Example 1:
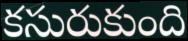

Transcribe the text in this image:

కసురుకుంది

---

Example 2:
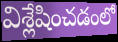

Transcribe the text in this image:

విశ్లేషించడంలో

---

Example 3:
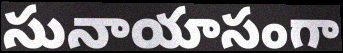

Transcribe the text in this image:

సునాయాసంగా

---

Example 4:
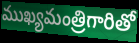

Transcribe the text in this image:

ముఖ్యమంత్రిగారితో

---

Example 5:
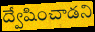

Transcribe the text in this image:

ద్వేషించాడని